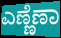
ಎಣ್ಣೆಣಾ